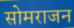
सोमराजन